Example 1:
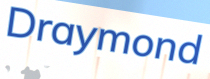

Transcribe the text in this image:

Draymond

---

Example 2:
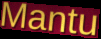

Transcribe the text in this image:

Mantu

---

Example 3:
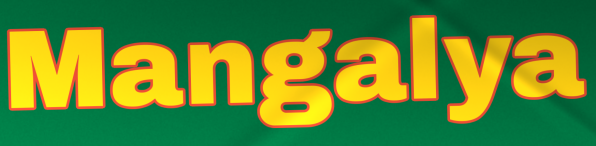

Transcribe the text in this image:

Mangalya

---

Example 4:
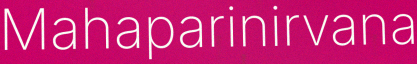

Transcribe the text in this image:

Mahaparinirvana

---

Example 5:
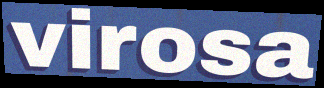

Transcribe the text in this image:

virosa